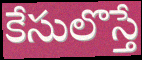
కేసులొస్తే